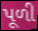
પૂળી